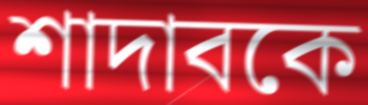
শাদাবকে